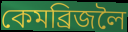
কেমব্ৰিজলৈ